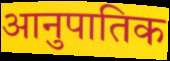
आनुपातिक